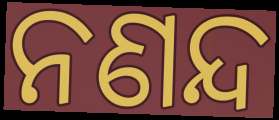
ନଣନ୍ଦ